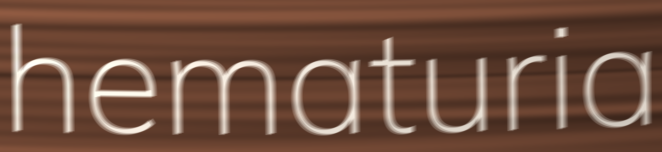
hematuria